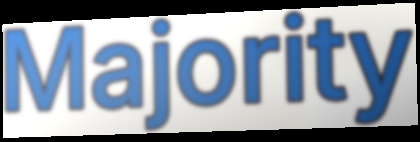
Majority